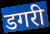
डगरी